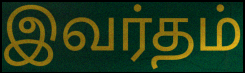
இவர்தம்